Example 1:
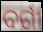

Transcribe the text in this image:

ବର୍ଗୀ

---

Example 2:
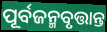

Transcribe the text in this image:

ପୂର୍ବଜନ୍ମବୃତ୍ତାନ୍ତ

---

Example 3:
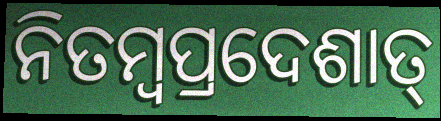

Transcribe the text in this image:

ନିତମ୍ବପ୍ରଦେଶାତ୍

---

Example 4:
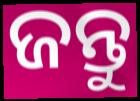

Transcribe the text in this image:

ଜନ୍ତୁ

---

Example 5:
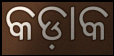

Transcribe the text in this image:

କଡ଼ାକ